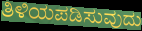
ತಿಳಿಯಪಡಿಸುವುದು